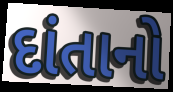
દાંતાનો